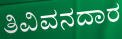
ತಿವಿವನದಾರ